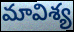
మావిశ్య